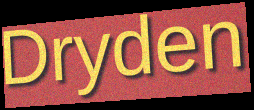
Dryden